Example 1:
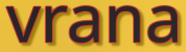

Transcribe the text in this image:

vrana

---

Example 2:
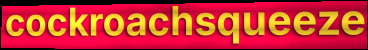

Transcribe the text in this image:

cockroachsqueeze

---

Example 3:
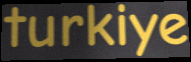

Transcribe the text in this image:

turkiye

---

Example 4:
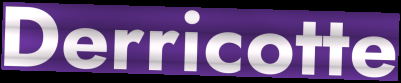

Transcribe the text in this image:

Derricotte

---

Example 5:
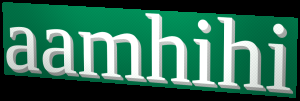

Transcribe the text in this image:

aamhihi